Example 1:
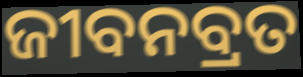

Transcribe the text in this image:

ଜୀବନବ୍ରତ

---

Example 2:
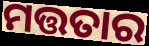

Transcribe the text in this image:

ମତ୍ତତାର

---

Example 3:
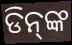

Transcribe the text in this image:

ଡିନ୍‌ଙ୍କ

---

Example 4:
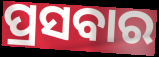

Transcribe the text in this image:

ପ୍ରସବାର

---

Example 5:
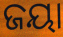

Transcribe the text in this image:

ଜୟା